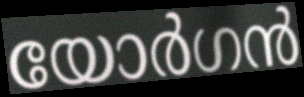
യോർഗൻ